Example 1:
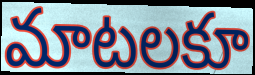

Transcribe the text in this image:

మాటలకూ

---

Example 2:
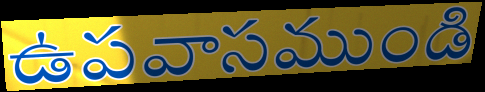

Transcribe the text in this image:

ఉపవాసముండి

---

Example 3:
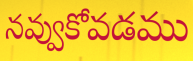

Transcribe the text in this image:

నవ్వుకోవడము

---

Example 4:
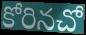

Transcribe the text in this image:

కోరినచో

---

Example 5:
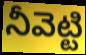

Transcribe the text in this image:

నీవెట్టి